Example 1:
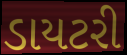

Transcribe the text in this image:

ડાયટરી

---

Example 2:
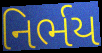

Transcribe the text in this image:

નિર્ભય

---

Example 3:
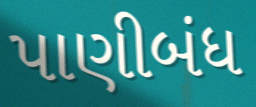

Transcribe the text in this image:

પાણીબંધ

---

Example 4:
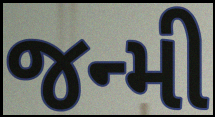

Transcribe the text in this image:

જન્મી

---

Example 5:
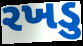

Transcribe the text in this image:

રખડુ